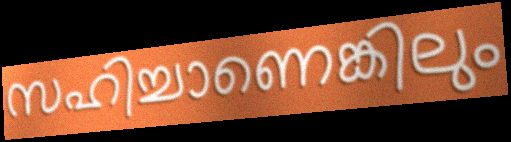
സഹിച്ചാണെങ്കിലും